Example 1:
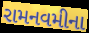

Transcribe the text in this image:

રામનવમીના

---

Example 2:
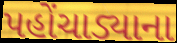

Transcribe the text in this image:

પહોંચાડ્યાના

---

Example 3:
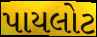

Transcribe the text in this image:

પાયલોટ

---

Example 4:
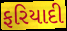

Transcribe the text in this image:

ફરિયાદી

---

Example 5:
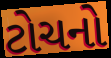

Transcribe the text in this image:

ટોચનો